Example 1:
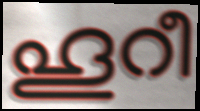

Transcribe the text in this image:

ഹൂറീ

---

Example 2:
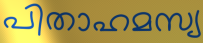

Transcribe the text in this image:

പിതാഹമസ്യ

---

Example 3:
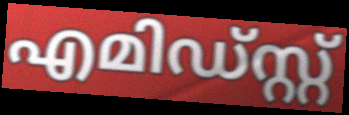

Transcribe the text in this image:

എമിഡ്സ്റ്റ്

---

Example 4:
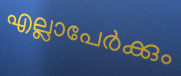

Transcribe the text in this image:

എല്ലാപേർക്കും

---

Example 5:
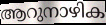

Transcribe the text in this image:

ആറുനാഴിക